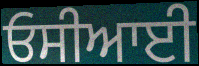
ਓਸੀਆਈ